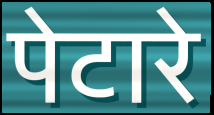
पेटारे